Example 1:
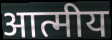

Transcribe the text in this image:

आत्मीय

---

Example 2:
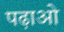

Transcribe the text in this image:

पढ़ाओ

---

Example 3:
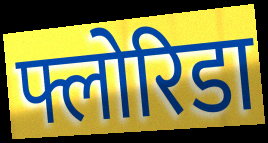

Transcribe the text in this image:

फ्लोरिडा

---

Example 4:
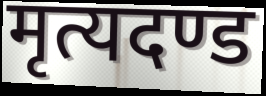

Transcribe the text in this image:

मृत्यदण्ड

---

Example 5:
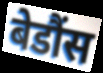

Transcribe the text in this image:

बेडौंस